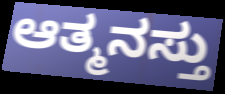
ಆತ್ಮನಸ್ತು